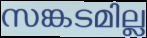
സങ്കടമില്ല